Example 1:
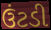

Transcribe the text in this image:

ઉંટડી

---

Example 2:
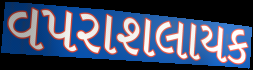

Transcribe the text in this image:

વપરાશલાયક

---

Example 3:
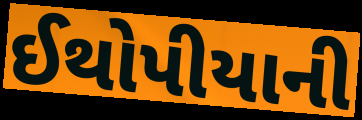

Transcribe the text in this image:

ઈથોપીયાની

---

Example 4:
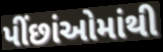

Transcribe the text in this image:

પીંછાંઓમાંથી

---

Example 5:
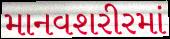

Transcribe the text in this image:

માનવશરીરમાં